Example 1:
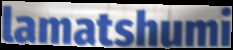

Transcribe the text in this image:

lamatshumi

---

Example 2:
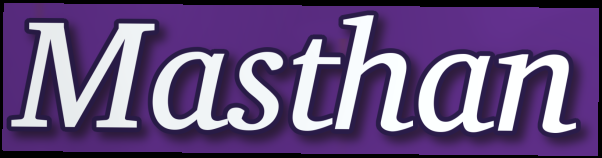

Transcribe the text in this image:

Masthan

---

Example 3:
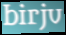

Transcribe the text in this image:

birju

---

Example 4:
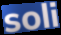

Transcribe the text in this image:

soli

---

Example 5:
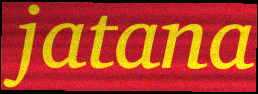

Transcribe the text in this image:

jatana